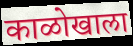
काळोखाला